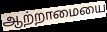
ஆற்றாமையை